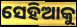
ସେହିଆକୁ